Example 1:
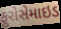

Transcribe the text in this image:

ફુરોસેમાઇડ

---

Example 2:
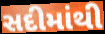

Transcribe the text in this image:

સદીમાંથી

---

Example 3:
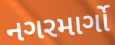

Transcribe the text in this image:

નગરમાર્ગો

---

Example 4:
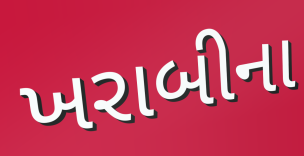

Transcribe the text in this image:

ખરાબીના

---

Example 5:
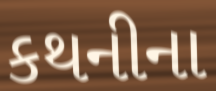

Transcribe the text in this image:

કથનીના